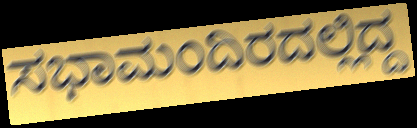
ಸಭಾಮಂದಿರದಲ್ಲಿದ್ದ